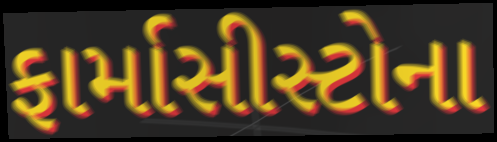
ફાર્માસીસ્ટોના